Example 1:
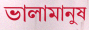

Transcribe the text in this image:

ভালামানুষ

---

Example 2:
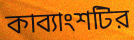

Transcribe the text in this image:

কাব্যাংশটির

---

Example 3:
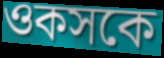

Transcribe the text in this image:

ওকসকে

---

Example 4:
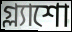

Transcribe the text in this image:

গ্ল্যাশো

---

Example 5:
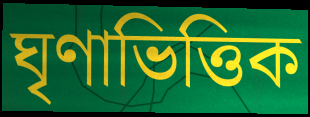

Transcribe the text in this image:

ঘৃণাভিত্তিক